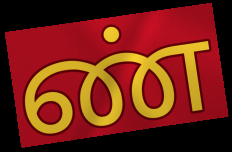
ண்